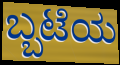
ಬ್ಬಟೆಯ